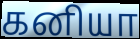
கனியா